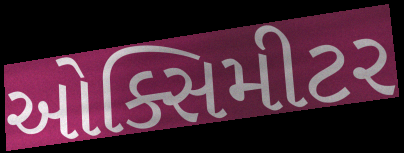
ઓક્સિમીટર